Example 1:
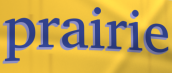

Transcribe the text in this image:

prairie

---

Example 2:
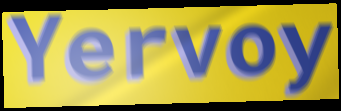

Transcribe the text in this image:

Yervoy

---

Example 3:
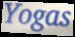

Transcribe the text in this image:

Yogas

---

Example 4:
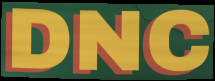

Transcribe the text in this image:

DNC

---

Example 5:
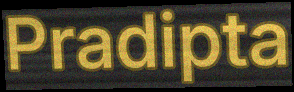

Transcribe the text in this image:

Pradipta